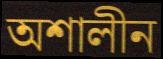
অশালীন